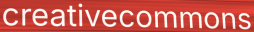
creativecommons